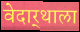
वेदार्थाला